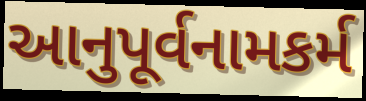
આનુપૂર્વનામકર્મ